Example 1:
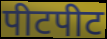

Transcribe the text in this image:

पीटपीट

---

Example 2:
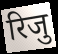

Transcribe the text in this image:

रिजु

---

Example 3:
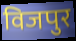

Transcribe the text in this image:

विजपुर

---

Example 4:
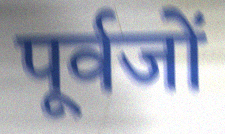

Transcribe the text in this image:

पूर्वजों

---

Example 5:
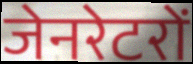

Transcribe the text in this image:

जेनरेटरों